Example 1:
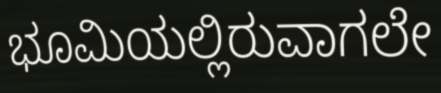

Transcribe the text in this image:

ಭೂಮಿಯಲ್ಲಿರುವಾಗಲೇ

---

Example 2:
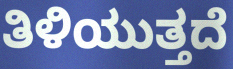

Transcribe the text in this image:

ತಿಳಿಯುತ್ತದೆ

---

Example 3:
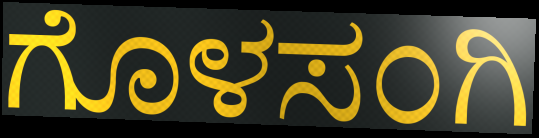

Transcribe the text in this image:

ಗೊಳಸಂಗಿ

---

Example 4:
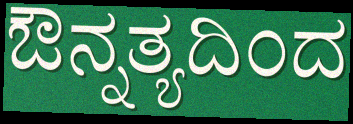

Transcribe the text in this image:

ಔನ್ನತ್ಯದಿಂದ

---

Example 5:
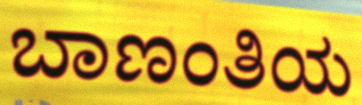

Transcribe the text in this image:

ಬಾಣಂತಿಯ